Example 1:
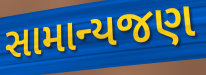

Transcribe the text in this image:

સામાન્યજણ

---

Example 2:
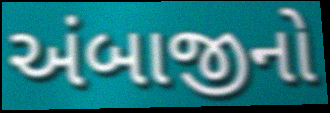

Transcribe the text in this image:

અંબાજીનો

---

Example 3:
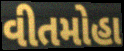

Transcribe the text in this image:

વીતમોહા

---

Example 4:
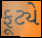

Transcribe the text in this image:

ફૂટ્યે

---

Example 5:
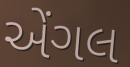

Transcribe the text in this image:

એંગલ